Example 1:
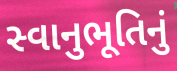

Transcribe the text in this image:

સ્વાનુભૂતિનું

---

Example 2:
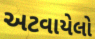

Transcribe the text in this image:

અટવાયેલો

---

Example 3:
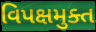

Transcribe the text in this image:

વિપક્ષમુક્ત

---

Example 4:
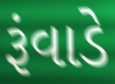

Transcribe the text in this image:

રૂંવાડે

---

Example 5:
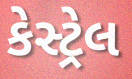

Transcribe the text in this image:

કેસ્ટ્રેલ